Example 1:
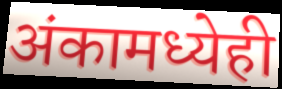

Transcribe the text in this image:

अंकामध्येही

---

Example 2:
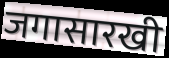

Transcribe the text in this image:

जगासारखी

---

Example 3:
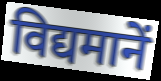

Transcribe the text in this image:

विद्यमानें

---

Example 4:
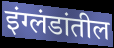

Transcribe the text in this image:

इंग्लंडांतील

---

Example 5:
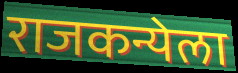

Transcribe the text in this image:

राजकन्येला